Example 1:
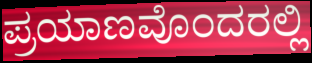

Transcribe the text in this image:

ಪ್ರಯಾಣವೊಂದರಲ್ಲಿ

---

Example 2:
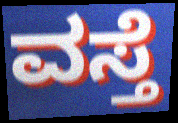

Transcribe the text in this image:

ವಸ್ತೆ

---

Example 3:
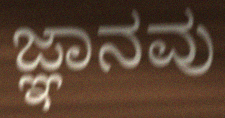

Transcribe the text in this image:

ಜ್ಞಾನವು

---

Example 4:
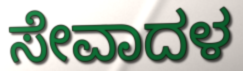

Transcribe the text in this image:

ಸೇವಾದಳ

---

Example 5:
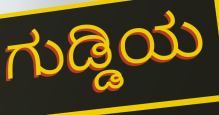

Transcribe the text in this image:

ಗುಡ್ಡಿಯ